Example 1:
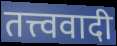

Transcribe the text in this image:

तत्त्ववादी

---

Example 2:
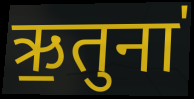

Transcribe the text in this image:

ऋ॒तुना॑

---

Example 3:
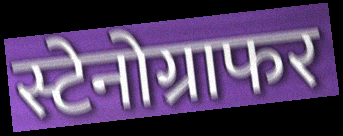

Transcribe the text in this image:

स्टेनोग्राफर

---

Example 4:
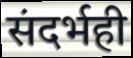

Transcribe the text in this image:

संदर्भही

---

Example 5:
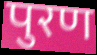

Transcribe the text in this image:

पुरण